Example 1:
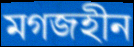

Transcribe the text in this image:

মগজহীন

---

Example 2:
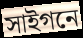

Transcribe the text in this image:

সাইগনে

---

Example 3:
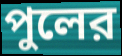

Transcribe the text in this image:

পুলের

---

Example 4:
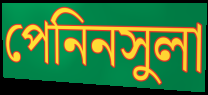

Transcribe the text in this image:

পেনিনসুলা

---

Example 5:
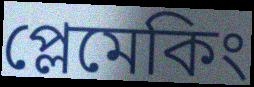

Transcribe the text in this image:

প্লেমেকিং